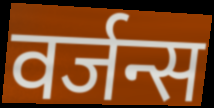
वर्जन्स